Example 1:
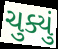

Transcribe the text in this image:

ચુક્યું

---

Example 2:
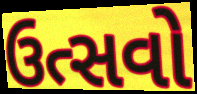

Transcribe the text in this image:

ઉત્સવો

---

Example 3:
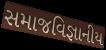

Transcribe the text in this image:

સમાજવિજ્ઞાનીય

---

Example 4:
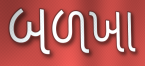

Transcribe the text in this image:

બળખા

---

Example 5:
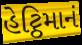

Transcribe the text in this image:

હેટ્ઠિમાનં